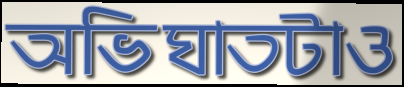
অভিঘাতটাও